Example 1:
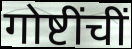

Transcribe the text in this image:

गोष्टींचीं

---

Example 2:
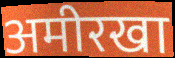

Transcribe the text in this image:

अमीरखा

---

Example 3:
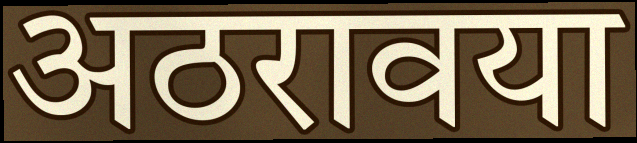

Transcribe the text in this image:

अठरावया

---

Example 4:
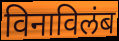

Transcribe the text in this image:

विनाविलंब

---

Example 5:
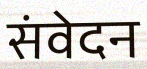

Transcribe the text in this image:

संवेदन